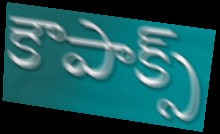
కౌపాక్స్